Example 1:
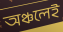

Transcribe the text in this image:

অঞ্চলেই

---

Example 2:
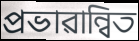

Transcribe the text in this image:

প্ৰভাৱান্বিত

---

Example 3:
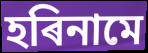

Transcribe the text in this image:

হৰিনামে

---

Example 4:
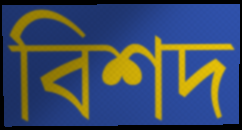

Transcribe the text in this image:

বিশদ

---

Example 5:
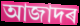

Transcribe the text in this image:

আজাদৰ